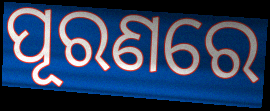
ପୂରଣରେ